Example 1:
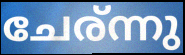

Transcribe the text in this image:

ചേര്ന്നു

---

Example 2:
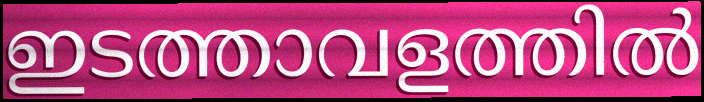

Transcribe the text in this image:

ഇടത്താവളത്തിൽ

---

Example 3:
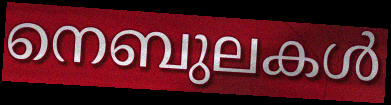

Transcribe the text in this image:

നെബുലകൾ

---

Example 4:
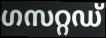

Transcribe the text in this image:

ഗസറ്റഡ്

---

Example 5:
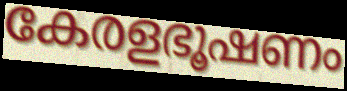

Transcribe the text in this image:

കേരളഭൂഷണം